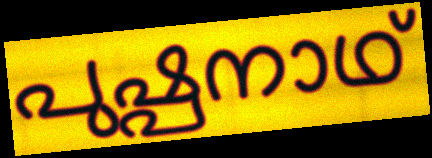
പുഷ്പനാഥ്